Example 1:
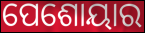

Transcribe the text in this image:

ପେଶୋୟାର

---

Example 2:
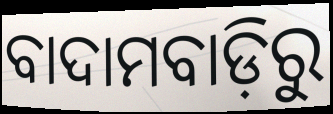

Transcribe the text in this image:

ବାଦାମବାଡ଼ିରୁ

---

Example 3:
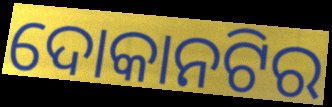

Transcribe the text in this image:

ଦୋକାନଟିର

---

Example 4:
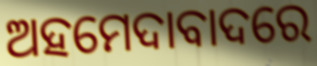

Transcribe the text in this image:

ଅହମେଦାବାଦରେ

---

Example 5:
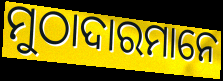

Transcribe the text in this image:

ମୁଠାଦାରମାନେ